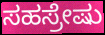
ಸಹಸ್ರೇಷು